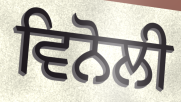
ਵਿਨੋਲੀ